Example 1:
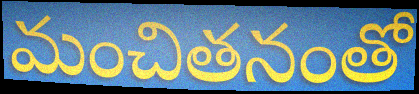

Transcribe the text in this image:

మంచితనంతో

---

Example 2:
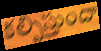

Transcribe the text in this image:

కల్పిస్తుందా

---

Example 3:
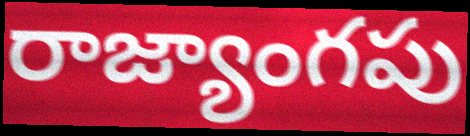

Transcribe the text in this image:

రాజ్యాంగపు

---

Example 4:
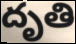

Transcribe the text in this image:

దృతి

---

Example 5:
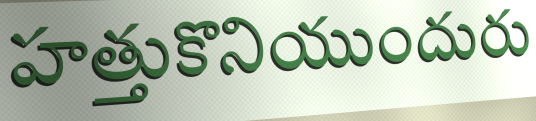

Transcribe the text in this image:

హత్తుకొనియుందురు